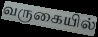
வருகையில்